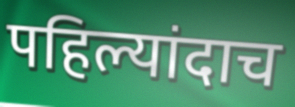
पहिल्यांदाच